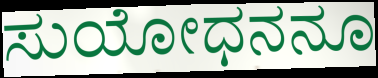
ಸುಯೋಧನನೂ